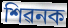
শিৱনক